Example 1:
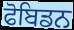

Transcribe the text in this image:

ਫੋਬਿਡਨ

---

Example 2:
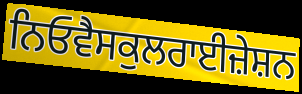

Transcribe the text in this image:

ਨਿਓਵੈਸਕੁਲਰਾਈਜ਼ੇਸ਼ਨ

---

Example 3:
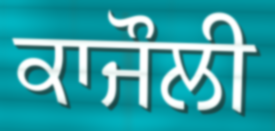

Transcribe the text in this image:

ਕਾਜੌਲੀ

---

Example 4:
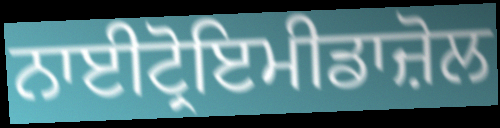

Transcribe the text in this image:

ਨਾਈਟ੍ਰੋਇਮੀਡਾਜ਼ੋਲ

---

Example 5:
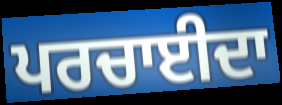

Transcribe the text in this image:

ਪਰਚਾਈਦਾ